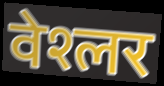
वेश्लर